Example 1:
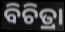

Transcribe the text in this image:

ବିଚିତ୍ରା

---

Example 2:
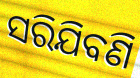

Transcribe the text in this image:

ସରିଯିବଣି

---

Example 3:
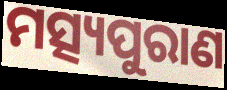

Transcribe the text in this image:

ମତ୍ସ୍ୟପୁରାଣ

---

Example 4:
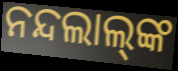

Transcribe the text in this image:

ନନ୍ଦଲାଲ୍‌ଙ୍କ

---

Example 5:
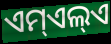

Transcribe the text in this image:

ଏମ୍ଏଲ୍ଏ